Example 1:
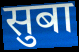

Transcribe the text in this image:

सुबा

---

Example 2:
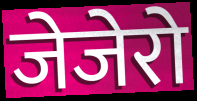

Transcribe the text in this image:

जेजेरो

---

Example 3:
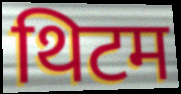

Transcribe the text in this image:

थिटम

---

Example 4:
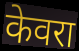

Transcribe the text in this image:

केवरा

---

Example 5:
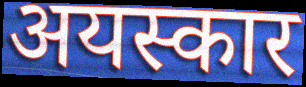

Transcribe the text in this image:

अयस्कार